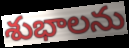
శుభాలను